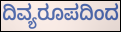
ದಿವ್ಯರೂಪದಿಂದ